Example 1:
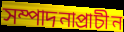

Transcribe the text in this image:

সম্পাদনাপ্রাচীন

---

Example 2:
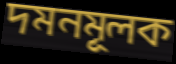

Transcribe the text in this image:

দমনমূলক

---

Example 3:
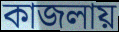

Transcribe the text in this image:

কাজলায়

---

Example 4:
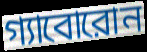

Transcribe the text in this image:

গ্যাবোরোন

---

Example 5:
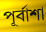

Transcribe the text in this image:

পূর্বাশা